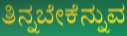
ತಿನ್ನಬೇಕೆನ್ನುವ